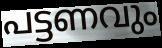
പട്ടണവും